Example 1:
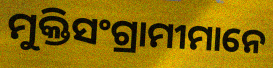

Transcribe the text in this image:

ମୁକ୍ତିସଂଗ୍ରାମୀମାନେ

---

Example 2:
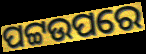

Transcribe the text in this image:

ପଟ୍ଟଉପରେ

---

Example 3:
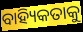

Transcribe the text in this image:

ବାହ୍ୟିକତାକୁ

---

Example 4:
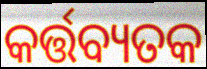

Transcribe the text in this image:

କର୍ତ୍ତବ୍ୟତକ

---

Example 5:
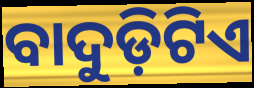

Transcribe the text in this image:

ବାଦୁଡ଼ିଟିଏ